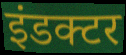
इंडक्टर